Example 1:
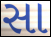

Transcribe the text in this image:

સા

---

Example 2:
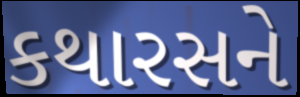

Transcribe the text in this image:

કથારસને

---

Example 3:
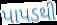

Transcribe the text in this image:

પાપડથી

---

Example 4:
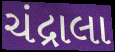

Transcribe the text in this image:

ચંદ્રાલા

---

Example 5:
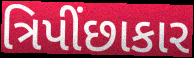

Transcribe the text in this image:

ત્રિપીંછાકાર